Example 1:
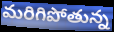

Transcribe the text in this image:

మరిగిపోతున్న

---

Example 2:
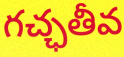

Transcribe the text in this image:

గచ్ఛతీవ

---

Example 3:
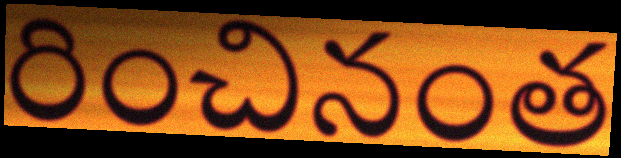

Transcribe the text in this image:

రించినంత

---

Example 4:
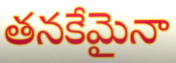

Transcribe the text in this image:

తనకేమైనా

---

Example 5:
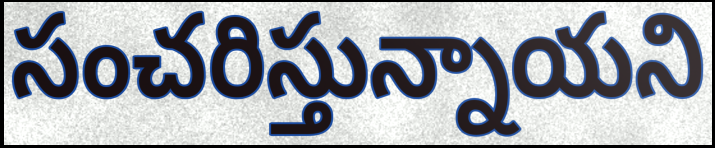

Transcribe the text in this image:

సంచరిస్తున్నాయని